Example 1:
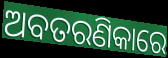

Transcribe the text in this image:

ଅବତରଣିକାରେ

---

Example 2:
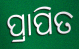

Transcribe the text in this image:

ପ୍ରାପିତ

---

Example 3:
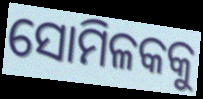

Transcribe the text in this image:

ସୋମିଳକକୁ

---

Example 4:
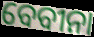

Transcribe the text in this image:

ବେବୀନା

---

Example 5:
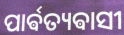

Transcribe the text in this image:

ପାର୍ଵତ୍ୟଵାସୀ